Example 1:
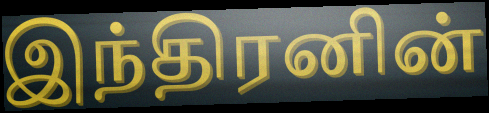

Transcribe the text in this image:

இந்திரனின்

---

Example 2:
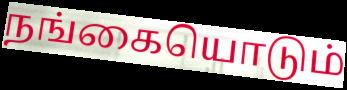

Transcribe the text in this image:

நங்கையொடும்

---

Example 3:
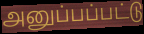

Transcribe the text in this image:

அனுப்பப்பட்டு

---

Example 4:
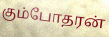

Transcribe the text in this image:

கும்போதரன்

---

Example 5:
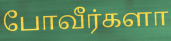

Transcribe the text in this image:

போவீர்களா